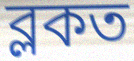
ব্লকত